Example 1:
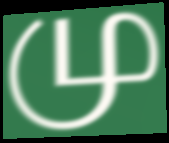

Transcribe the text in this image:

மு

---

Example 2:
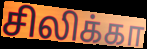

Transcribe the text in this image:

சிலிக்கா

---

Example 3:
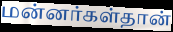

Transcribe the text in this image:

மன்னர்கள்தான்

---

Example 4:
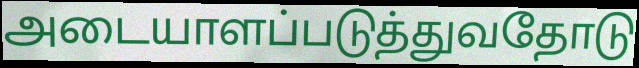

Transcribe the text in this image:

அடையாளப்படுத்துவதோடு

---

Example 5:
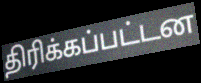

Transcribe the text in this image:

திரிக்கப்பட்டன